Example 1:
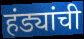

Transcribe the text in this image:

हंड्यांची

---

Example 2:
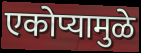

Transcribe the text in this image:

एकोप्यामुळे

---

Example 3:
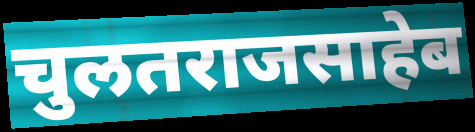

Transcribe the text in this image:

चुलतराजसाहेब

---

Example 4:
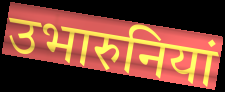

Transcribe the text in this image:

उभारुनियां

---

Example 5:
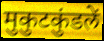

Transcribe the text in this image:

मुकुटकुंडलें